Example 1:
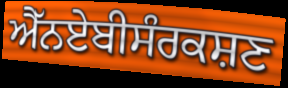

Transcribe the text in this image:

ਐੱਨਏਬੀਸੰਰਕਸ਼ਣ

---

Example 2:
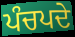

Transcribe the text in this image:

ਪੰਚਪਦੇ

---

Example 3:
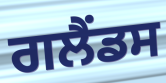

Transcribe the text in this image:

ਗਲੈਂਡਸ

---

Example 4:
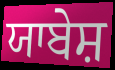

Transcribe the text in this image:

ਯਾਬੇਸ਼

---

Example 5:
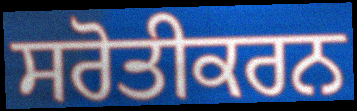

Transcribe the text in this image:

ਸਰੋਤੀਕਰਨ